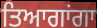
ਤਿਆਗਾਂਗਾ